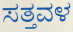
ಸತ್ತವಳ